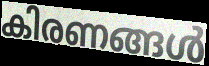
കിരണങ്ങൾ